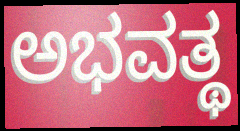
ಅಭವತ್ಥ